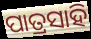
ପାତ୍ରସାହି